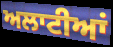
ਅਲਾਟੀਆਂ